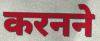
करनने